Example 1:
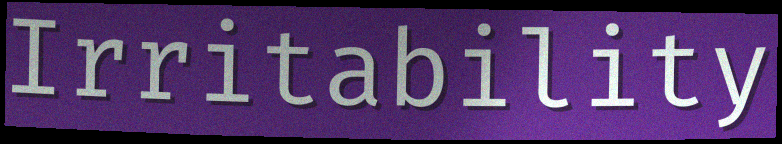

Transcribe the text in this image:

Irritability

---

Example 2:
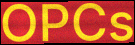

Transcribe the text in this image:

OPCs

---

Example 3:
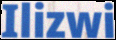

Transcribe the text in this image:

Ilizwi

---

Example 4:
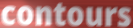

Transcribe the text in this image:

contours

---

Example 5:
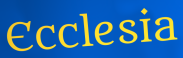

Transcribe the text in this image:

Ecclesia